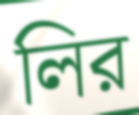
লির